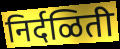
निर्दळिती